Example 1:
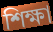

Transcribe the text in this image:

শিক্ষা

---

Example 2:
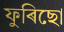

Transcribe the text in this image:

ফুৰিছো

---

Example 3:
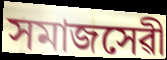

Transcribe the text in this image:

সমাজসেৱী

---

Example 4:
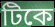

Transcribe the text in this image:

টিকে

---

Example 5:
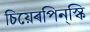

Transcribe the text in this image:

চিয়েৰপিন্‌স্কি